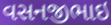
વસનજીભાઇ